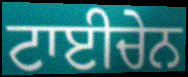
ਟਾਈਚੇਨ